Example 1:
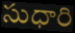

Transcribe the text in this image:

సుధారి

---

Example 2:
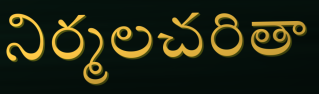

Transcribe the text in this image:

నిర్మలచరితా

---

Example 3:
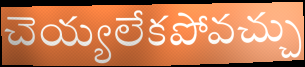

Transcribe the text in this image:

చెయ్యలేకపోవచ్చు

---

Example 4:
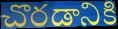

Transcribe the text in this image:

చొరడానికి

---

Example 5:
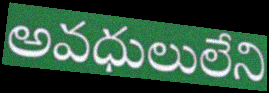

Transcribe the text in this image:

అవధులులేని